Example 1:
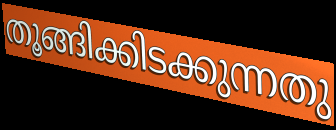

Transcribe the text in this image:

തൂങ്ങിക്കിടക്കുന്നതു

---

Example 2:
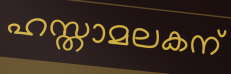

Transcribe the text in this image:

ഹസ്താമലകന്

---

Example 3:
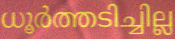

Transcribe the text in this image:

ധൂർത്തടിച്ചില്ല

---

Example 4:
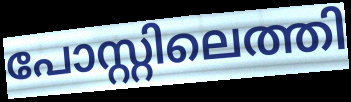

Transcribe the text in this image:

പോസ്റ്റിലെത്തി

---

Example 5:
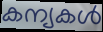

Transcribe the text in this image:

കന്യകൾ